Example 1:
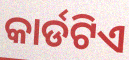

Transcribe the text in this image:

କାର୍ଡଟିଏ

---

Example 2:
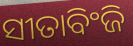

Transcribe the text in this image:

ସୀତାବିଂଜି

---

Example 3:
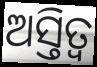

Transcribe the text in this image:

ଅସ୍ତିତ୍ଵ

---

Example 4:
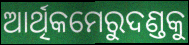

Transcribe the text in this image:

ଆର୍ଥିକମେରୁଦଣ୍ଡକୁ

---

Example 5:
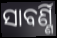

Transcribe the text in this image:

ସାବର୍ଣ୍ଣି